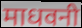
माधवनी